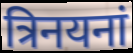
त्रिनयनां